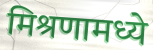
मिश्रणामध्ये